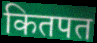
कितपत